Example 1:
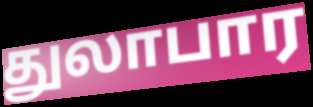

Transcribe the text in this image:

துலாபார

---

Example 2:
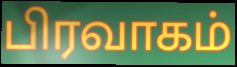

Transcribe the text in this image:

பிரவாகம்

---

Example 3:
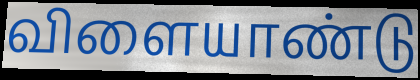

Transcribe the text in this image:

விளையாண்டு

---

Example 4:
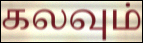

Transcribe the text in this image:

கலவும்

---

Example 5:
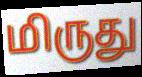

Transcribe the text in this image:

மிருது